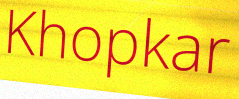
Khopkar